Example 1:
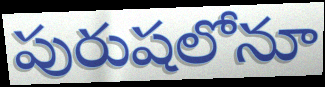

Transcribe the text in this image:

పురుషలోనూ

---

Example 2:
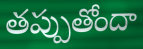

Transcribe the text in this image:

తప్పుతోందా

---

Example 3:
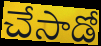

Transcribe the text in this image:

చేసాడో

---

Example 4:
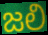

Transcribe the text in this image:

జలి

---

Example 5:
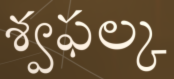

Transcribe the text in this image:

శ్వఫల్క